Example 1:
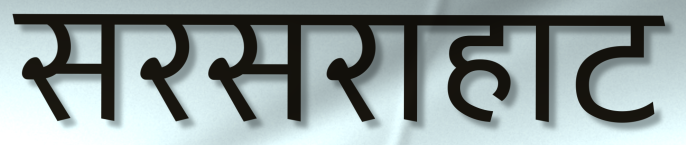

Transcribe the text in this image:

सरसराहाट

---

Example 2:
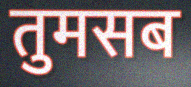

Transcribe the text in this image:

तुमसब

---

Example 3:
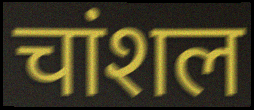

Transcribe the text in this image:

चांशल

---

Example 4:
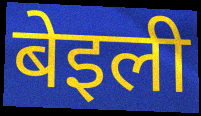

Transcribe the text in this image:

बेइली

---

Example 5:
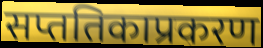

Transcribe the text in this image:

सप्ततिकाप्रकरण